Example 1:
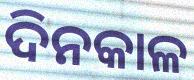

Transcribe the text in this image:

ଦିନକାଳ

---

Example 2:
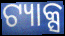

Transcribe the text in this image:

ଟ୍ୟାକ୍ସ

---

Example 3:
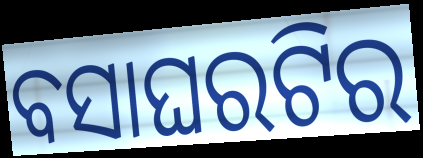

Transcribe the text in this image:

ବସାଘରଟିର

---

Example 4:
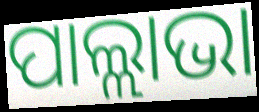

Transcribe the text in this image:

ପାଲ୍ଲାଭା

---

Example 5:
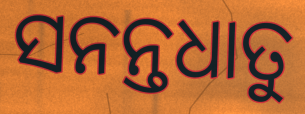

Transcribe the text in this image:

ସନନ୍ତଧାତୁ